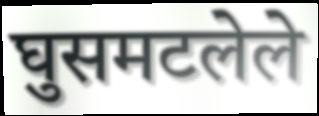
घुसमटलेले